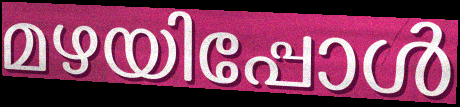
മഴയിപ്പോൾ